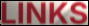
LINKS